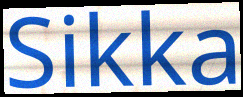
Sikka